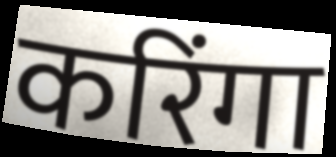
करिंगा